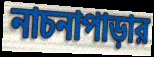
নাচনাপাড়ার